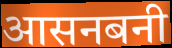
आसनबनी